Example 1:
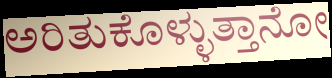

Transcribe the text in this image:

ಅರಿತುಕೊಳ್ಳುತ್ತಾನೋ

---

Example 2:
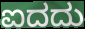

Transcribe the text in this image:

ಐದದು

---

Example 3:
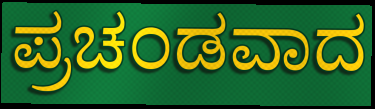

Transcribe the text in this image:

ಪ್ರಚಂಡವಾದ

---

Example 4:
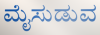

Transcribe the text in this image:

ಮೈಸುಡುವ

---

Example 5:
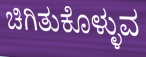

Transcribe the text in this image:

ಚಿಗಿತುಕೊಳ್ಳುವ